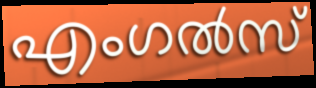
എംഗൽസ്